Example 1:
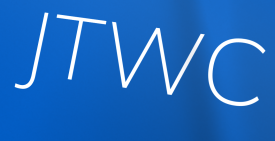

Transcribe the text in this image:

JTWC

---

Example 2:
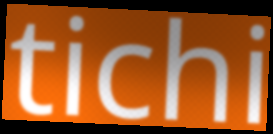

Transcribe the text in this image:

tichi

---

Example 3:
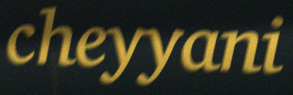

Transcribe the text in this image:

cheyyani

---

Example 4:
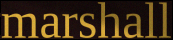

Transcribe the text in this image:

marshall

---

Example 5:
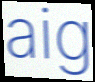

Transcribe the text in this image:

aig